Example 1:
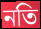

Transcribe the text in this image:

নতি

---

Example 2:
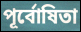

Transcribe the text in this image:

পূর্বোষিতা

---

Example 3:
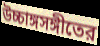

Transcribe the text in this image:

উচ্চাঙ্গসঙ্গীতের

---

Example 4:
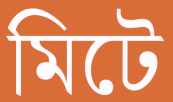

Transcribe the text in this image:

মিটে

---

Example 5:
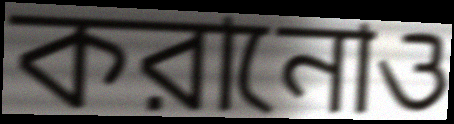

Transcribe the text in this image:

করানোও